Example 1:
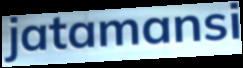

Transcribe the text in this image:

jatamansi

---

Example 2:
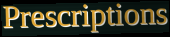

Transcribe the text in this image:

Prescriptions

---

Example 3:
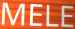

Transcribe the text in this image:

MELE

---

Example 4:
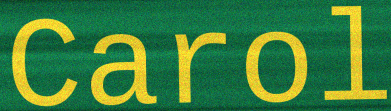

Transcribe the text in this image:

Carol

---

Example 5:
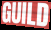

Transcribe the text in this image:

GUILD